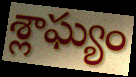
శ్లాఘ్యం